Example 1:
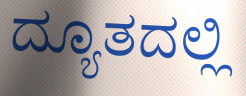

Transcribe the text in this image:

ದ್ಯೂತದಲ್ಲಿ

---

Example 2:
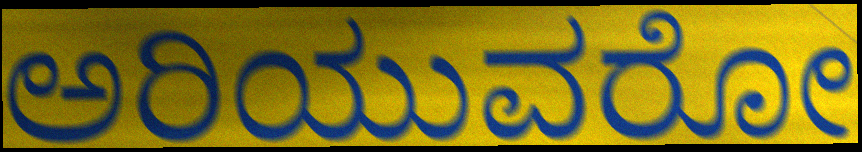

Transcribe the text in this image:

ಅರಿಯುವರೋ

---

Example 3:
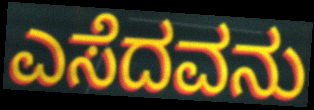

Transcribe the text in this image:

ಎಸೆದವನು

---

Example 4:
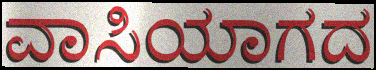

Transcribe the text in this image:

ವಾಸಿಯಾಗದ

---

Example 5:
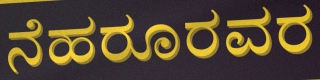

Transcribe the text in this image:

ನೆಹರೂರವರ